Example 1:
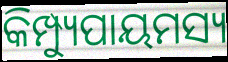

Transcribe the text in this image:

କିମ୍ପ୍ୟୁପାୟମସ୍ୟ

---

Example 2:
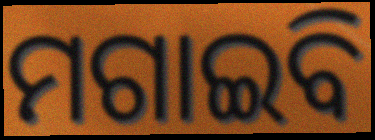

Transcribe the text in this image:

ମଗାଇବି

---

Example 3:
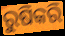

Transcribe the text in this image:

ରୁଷିକରି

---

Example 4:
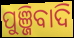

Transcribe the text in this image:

ପୁଞ୍ଜିବାଦି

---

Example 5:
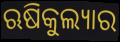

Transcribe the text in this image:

ଋଷିକୁଲ୍ୟାର